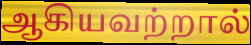
ஆகியவற்றால்